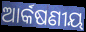
ଆର୍କଷଣୀୟ